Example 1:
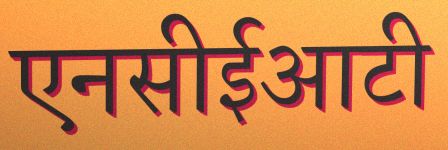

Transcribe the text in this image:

एनसीईआटी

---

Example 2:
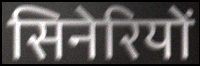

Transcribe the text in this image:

सिनेरियों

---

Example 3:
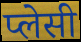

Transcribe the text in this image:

प्लेसी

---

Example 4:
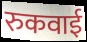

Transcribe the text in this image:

रुकवाई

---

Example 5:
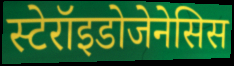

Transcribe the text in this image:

स्टेरॉइडोजेनेसिस